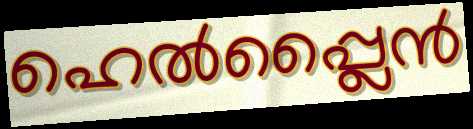
ഹെൽപ്പ്ലൈൻ